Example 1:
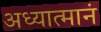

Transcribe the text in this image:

अध्यात्मानं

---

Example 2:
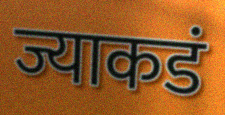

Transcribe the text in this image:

ज्याकडं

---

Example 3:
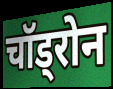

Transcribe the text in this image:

चॉड्रोन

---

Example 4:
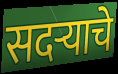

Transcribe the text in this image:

सदऱ्याचे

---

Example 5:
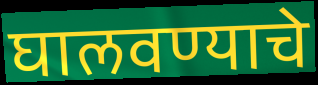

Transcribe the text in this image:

घालवण्याचे